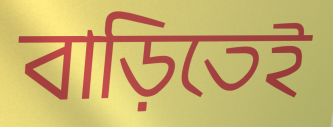
বাড়িতেই